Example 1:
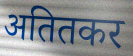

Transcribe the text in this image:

अतितकर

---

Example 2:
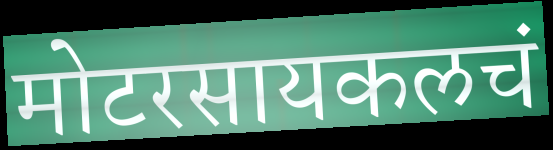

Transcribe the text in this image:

मोटरसायकलचं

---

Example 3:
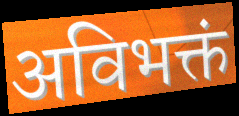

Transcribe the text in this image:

अविभक्तं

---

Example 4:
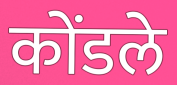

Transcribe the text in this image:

कोंडले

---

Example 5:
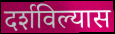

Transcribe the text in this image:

दर्शविल्यास